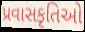
પ્રવાસકૃતિઓ